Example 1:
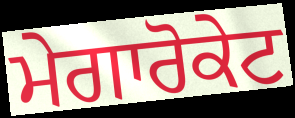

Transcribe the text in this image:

ਮੇਗਾਰੋਕੇਟ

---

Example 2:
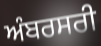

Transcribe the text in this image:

ਅੰਬਰਸਰੀ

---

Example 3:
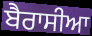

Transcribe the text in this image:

ਬੈਰਾਸੀਆ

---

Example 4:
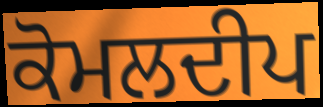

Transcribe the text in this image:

ਕੋਮਲਦੀਪ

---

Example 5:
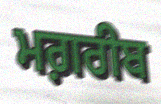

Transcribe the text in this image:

ਮਗ਼ਰੀਬ